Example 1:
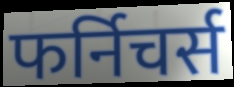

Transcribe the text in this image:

फर्निचर्स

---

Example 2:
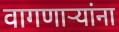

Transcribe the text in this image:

वागणार्‍यांना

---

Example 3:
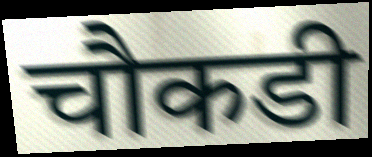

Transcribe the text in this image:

चौकडी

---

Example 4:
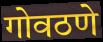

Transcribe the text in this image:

गोवठणे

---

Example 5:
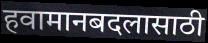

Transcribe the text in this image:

हवामानबदलासाठी